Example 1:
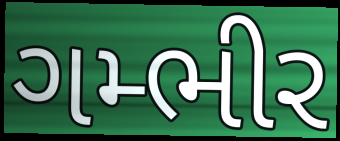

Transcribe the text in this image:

ગમ્ભીર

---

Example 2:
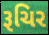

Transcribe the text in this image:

રૂચિર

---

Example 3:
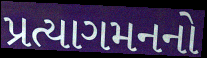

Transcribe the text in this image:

પ્રત્યાગમનનો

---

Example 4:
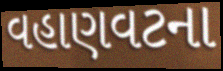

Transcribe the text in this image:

વહાણવટના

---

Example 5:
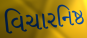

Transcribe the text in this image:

વિચારનિષ્ઠ